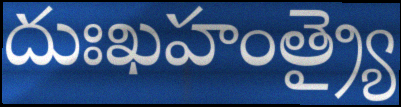
దుఃఖహంత్ర్యై